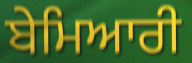
ਬੇਮਿਆਰੀ